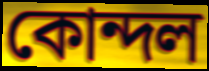
কোন্দল